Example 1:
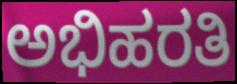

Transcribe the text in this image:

ಅಭಿಹರತಿ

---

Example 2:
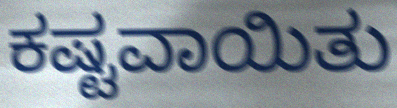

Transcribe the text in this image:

ಕಷ್ಟವಾಯಿತು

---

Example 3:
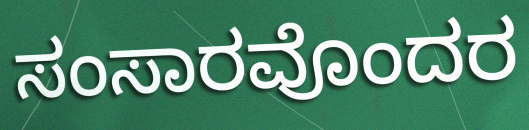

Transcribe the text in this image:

ಸಂಸಾರವೊಂದರ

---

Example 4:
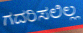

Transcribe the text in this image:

ಗದರಿಸಲಿಲ್ಲ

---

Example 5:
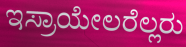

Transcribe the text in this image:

ಇಸ್ರಾಯೇಲರೆಲ್ಲರು